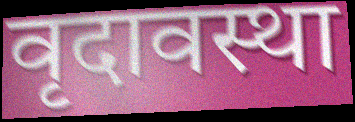
वृदावस्था